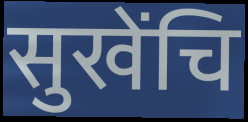
सुखेंचि